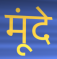
मूंदे